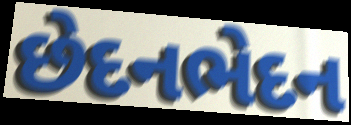
છેદનભેદન